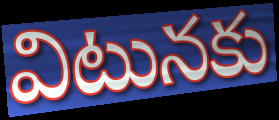
విటునకు